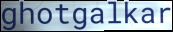
ghotgalkar